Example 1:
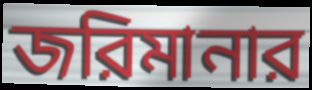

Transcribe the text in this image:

জরিমানার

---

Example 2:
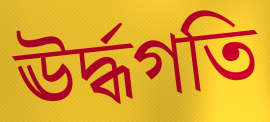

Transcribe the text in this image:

ঊর্দ্ধগতি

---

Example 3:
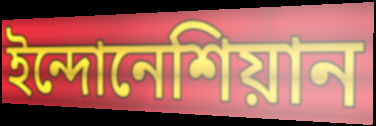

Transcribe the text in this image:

ইন্দোনেশিয়ান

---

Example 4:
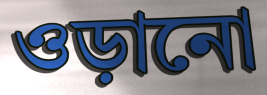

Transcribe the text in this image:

ওড়ানো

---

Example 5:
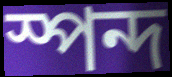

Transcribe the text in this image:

স্পন্দ